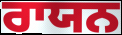
ਰਾਯਨ